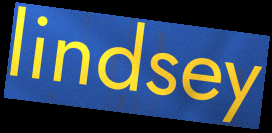
lindsey